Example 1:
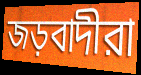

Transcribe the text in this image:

জড়বাদীরা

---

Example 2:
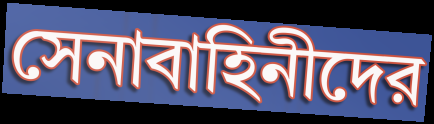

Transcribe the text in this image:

সেনাবাহিনীদের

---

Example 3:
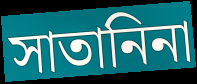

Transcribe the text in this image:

সাতানিনা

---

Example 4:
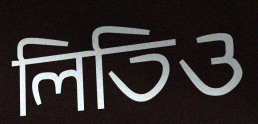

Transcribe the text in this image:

লিতিও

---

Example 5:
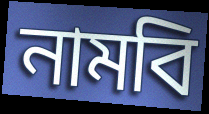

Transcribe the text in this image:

নামবি